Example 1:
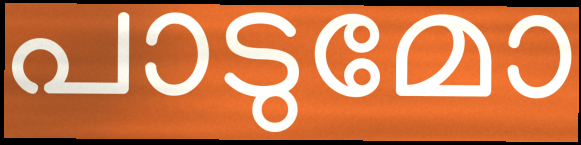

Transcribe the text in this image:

പാടുമോ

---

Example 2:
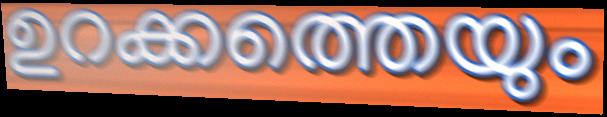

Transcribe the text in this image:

ഉറക്കത്തെയും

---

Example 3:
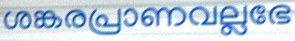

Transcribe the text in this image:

ശങ്കരപ്രാണവല്ലഭേ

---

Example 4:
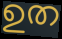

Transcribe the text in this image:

ഉത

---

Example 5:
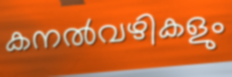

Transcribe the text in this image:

കനൽവഴികളും